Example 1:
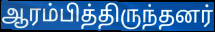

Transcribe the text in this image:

ஆரம்பித்திருந்தனர்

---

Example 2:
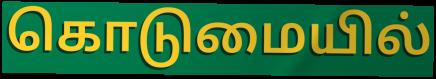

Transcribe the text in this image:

கொடுமையில்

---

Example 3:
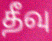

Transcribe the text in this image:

தீவு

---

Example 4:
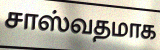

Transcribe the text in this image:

சாஸ்வதமாக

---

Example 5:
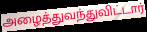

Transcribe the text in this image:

அழைத்துவந்துவிட்டார்